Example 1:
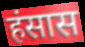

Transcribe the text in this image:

हंसास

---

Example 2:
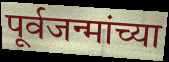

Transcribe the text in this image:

पूर्वजन्मांच्या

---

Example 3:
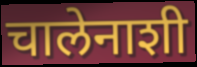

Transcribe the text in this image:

चालेनाशी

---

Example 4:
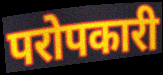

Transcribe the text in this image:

परोपकारी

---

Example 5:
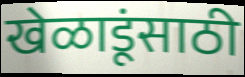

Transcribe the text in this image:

खेळाडूंसाठी